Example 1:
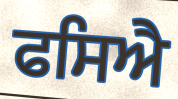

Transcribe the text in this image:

ਫਸਿਐ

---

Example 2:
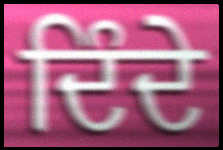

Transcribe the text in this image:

ਦਿੰਦੇ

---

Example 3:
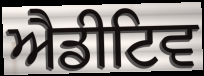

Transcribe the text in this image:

ਐਡੀਟਿਵ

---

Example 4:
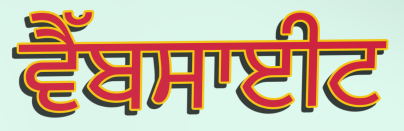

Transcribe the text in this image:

ਵੈੱਬਸਾਈਟ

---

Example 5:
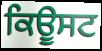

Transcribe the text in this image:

ਕਿਊਸਟ